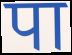
पा